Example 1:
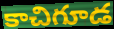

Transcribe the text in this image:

కాచిగూడ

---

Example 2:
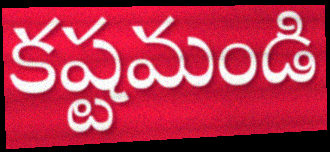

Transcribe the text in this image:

కష్టమండి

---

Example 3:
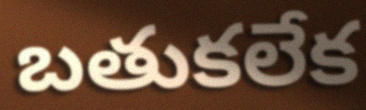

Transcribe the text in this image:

బతుకలేక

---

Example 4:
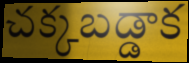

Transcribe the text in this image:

చక్కబడ్డాక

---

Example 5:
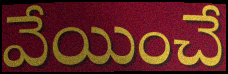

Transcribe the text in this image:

వేయించే